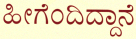
ಹೀಗೆಂದಿದ್ದಾನೆ